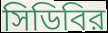
সিডিবির